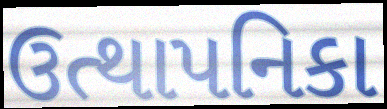
ઉત્થાપનિકા